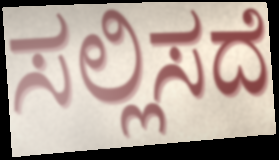
ಸಲ್ಲಿಸದೆ